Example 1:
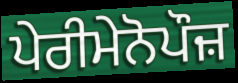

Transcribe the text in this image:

ਪੇਰੀਮੇਨੋਪੌਜ਼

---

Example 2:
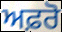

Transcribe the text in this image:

ਅਫ਼ਰੋ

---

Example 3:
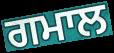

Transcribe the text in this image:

ਗਮਾਲ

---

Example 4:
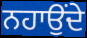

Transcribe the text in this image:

ਨਹਾਉਂਦੇ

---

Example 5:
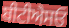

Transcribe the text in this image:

ਬੀਟੀਐਸਓ